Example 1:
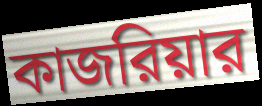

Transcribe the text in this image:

কাজরিয়ার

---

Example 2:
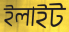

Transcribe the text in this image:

ইলাইট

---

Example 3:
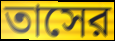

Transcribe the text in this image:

তাসের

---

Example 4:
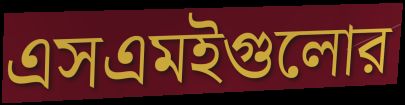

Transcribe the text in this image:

এসএমইগুলোর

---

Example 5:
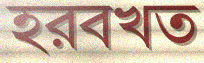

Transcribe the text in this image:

হরবখত